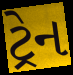
ટ્રેન